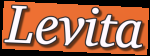
Levita